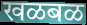
खळबळ